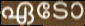
ഏടോ